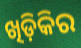
ଖିଡ଼ିକିର